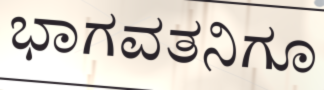
ಭಾಗವತನಿಗೂ